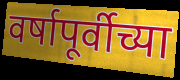
वर्षापूर्वीच्या